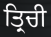
ਤ੍ਰਿਚੀ